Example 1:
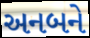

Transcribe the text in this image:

અનબને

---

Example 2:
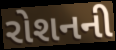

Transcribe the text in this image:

રોશનની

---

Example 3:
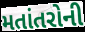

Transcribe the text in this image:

મતાંતરોની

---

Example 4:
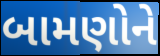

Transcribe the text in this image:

બામણોને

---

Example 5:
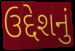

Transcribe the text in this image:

ઉદ્દેશનું